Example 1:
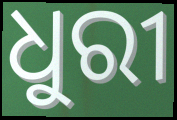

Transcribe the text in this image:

ଧୁରୀ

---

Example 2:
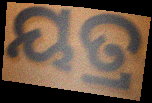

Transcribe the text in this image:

ୟତ୍ର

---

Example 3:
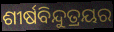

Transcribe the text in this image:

ଶୀର୍ଷବିନ୍ଦୁତ୍ରୟର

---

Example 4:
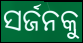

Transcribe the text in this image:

ସର୍ଜନକୁ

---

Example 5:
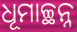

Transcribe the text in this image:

ଧୂମାଚ୍ଛନ୍ନ